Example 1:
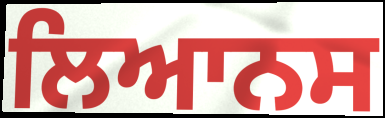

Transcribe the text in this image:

ਲਿਆਨਸ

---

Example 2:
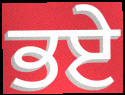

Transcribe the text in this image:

ਭਏ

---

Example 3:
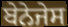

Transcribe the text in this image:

ਬੇਨੇਜੇਸ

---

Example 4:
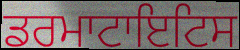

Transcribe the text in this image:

ਡਰਮਾਟਾਇਟਿਸ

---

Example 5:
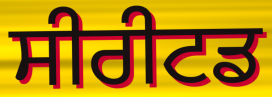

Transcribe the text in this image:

ਸੀਰੀਟਡ